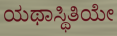
ಯಥಾಸ್ಥಿತಿಯೇ